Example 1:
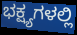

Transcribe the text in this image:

ಭಕ್ಷ್ಯಗಳಲ್ಲಿ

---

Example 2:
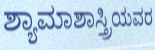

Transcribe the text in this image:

ಶ್ಯಾಮಾಶಾಸ್ತ್ರಿಯವರ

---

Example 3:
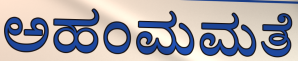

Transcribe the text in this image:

ಅಹಂಮಮತೆ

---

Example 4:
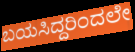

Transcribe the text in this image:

ಬಯಸಿದ್ದರಿಂದಲೇ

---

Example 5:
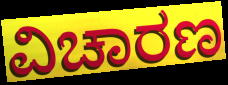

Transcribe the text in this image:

ವಿಚಾರಣ